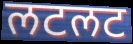
लटलट